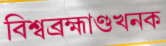
বিশ্বব্ৰহ্মাণ্ডখনক